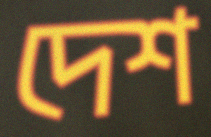
দেশ